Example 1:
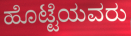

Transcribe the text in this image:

ಹೊಟ್ಟೆಯವರು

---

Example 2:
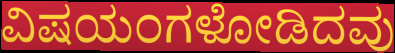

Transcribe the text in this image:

ವಿಷಯಂಗಳೋಡಿದವು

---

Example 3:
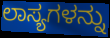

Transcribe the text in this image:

ಲಾಸ್ಯಗಳನ್ನು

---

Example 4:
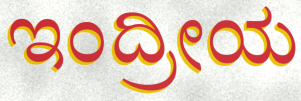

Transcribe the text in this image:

ಇಂದ್ರೀಯ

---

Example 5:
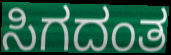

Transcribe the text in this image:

ಸಿಗದಂತ